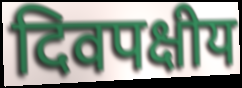
दिवपक्षीय